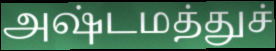
அஷ்டமத்துச்